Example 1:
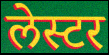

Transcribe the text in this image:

लेस्टर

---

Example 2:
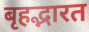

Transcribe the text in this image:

बृहद्भारत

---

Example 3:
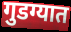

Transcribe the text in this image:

गुडग्यात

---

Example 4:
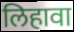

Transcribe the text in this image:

लिहावा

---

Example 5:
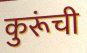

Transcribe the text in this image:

कुरूंची